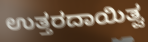
ಉತ್ತರದಾಯಿತ್ವ